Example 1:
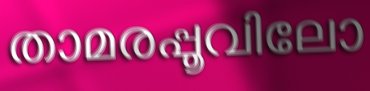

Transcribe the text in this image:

താമരപ്പൂവിലോ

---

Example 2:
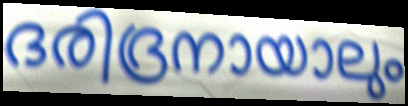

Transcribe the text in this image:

ദരിദ്രനായാലും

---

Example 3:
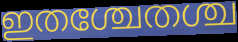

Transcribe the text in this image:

ഇതശ്ചേതശ്ച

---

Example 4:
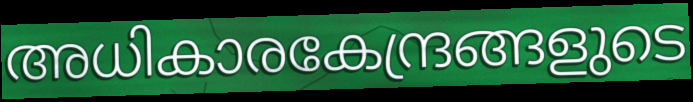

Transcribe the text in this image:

അധികാരകേന്ദ്രങ്ങളുടെ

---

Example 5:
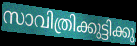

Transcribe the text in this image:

സാവിത്രിക്കുട്ടിക്കു